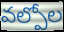
వల్పోల